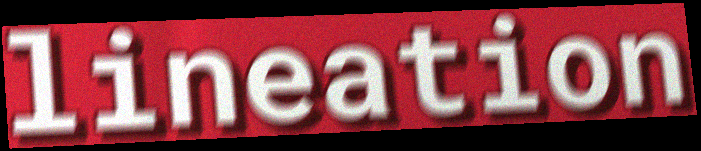
lineation